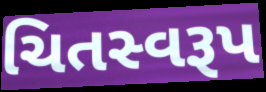
ચિતસ્વરૂપ